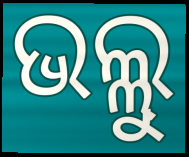
ଭଲ୍ଲୁ